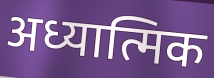
अध्यात्मिक